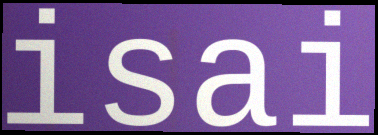
isai